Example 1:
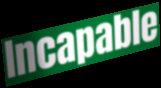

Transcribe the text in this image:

Incapable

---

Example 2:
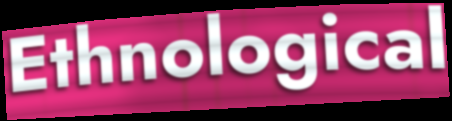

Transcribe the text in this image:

Ethnological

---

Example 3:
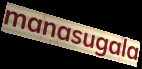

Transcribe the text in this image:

manasugala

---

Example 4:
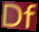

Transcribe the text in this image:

Df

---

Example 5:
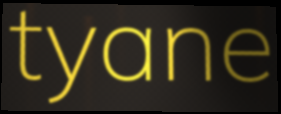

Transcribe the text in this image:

tyane